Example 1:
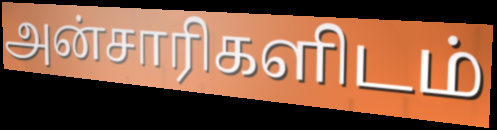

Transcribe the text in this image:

அன்சாரிகளிடம்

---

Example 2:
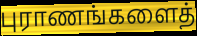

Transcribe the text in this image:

புராணங்களைத்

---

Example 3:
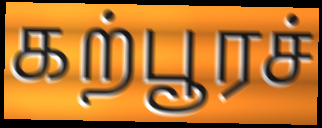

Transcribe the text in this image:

கற்பூரச்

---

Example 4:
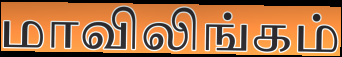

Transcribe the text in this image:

மாவிலிங்கம்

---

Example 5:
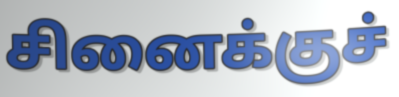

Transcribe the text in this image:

சினைக்குச்